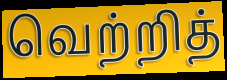
வெற்றித்